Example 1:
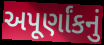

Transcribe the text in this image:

અપૂર્ણાંકનું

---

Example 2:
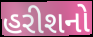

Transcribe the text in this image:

હરીશનો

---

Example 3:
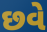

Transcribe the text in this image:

છવે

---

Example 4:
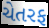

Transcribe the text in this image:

ચેતરફ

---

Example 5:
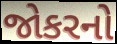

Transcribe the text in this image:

જોકરનો